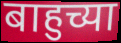
बाहुच्या